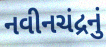
નવીનચંદ્રનું